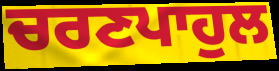
ਚਰਣਪਾਹੁਲ